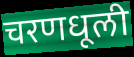
चरणधूली